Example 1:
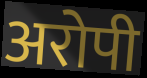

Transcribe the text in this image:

अरोपी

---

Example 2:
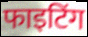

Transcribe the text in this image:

फाइटिंग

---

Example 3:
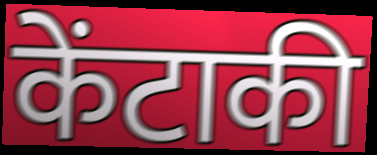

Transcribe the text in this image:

केंटाकी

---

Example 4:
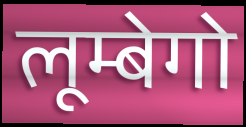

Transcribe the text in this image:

लूम्बेगो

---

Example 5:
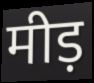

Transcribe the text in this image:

मीड़